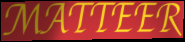
MATTEER